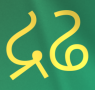
દ્રઢ